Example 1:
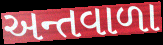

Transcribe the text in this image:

અન્તવાળા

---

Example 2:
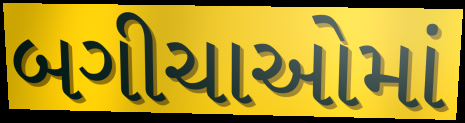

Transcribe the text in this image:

બગીચાઓમાં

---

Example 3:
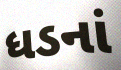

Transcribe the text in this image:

ધડનાં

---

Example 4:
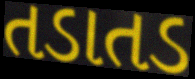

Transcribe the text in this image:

તડાતડ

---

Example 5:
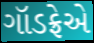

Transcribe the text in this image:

ગૉડફ્રેએ